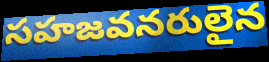
సహజవనరులైన